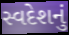
સ્વદેશનું